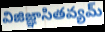
విజిజ్ఞాసితవ్యమ్